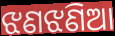
ଝଣଝଣିଆ